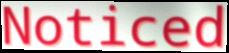
Noticed